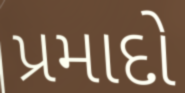
પ્રમાદો